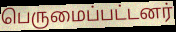
பெருமைப்பட்டனர்